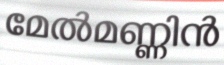
മേൽമണ്ണിൻ